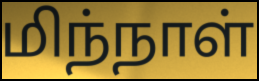
மிந்நாள்